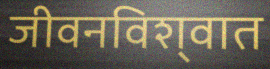
जीवनविश्वात